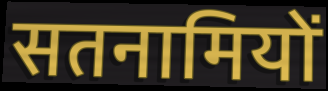
सतनामियों